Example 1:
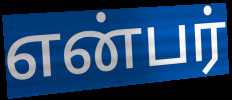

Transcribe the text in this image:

என்பர்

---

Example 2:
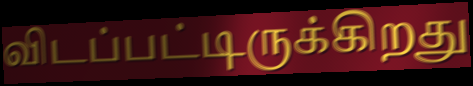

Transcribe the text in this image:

விடப்பட்டிருக்கிறது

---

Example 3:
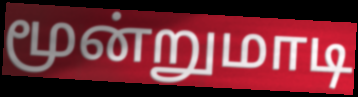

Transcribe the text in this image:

மூன்றுமாடி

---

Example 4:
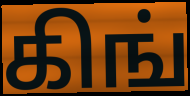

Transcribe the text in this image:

கிங்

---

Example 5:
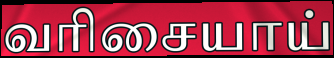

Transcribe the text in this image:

வரிசையாய்